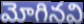
మోగినవి